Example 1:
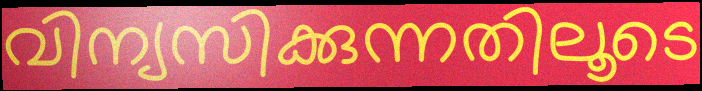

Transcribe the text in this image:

വിന്യസിക്കുന്നതിലൂടെ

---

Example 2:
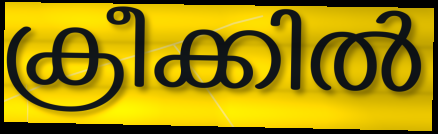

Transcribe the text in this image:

ക്രീക്കിൽ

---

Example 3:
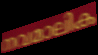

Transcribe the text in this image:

നവമാലിക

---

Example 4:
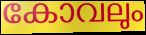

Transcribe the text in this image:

കോവലും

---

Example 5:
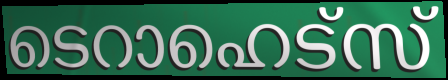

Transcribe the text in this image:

ടെറാഹെട്സ്